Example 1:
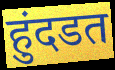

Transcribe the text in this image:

हुंदडत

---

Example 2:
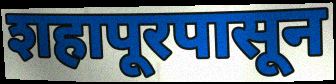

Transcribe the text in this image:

शहापूरपासून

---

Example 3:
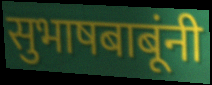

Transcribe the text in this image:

सुभाषबाबूंनी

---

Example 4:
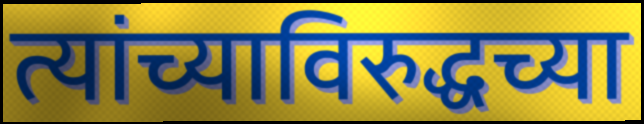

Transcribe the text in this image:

त्यांच्याविरुद्धच्या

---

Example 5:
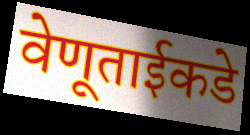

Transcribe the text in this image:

वेणूताईकडे